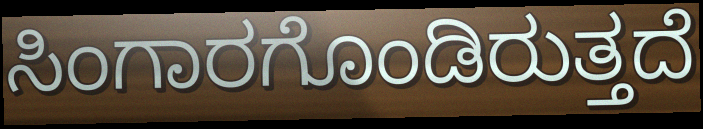
ಸಿಂಗಾರಗೊಂಡಿರುತ್ತದೆ